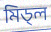
মিড্‌ল